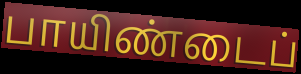
பாயிண்டைப்